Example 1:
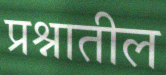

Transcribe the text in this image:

प्रश्नातील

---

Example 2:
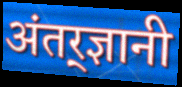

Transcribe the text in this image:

अंतर्ज्ञानी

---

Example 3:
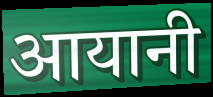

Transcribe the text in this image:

आयानी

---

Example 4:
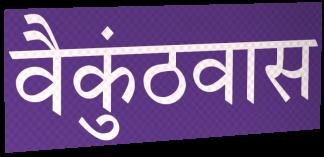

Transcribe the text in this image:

वैकुंठवास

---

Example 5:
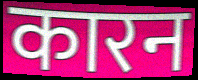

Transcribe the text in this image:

कारन